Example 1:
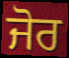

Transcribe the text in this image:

ਜੋਰ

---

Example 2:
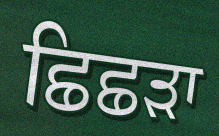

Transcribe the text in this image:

ਛਿਛੜਾ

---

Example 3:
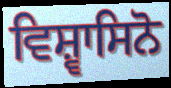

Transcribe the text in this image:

ਵਿਸ਼੍ਵਾਸਿਨੋ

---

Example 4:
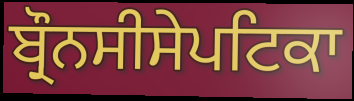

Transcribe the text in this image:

ਬ੍ਰੌਨਸੀਸੇਪਟਿਕਾ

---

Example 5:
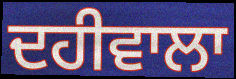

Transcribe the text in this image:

ਦਹੀਵਾਲਾ